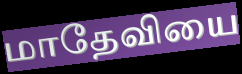
மாதேவியை